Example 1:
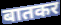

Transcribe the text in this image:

बातकर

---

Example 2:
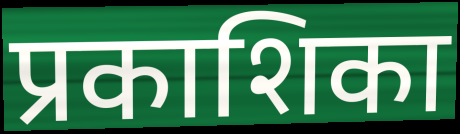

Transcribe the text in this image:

प्रकाशिका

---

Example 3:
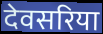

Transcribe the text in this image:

देवसरिया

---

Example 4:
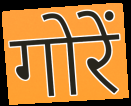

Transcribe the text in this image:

गोरें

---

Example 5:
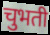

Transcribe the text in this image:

चुभती